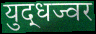
युद्धज्वर